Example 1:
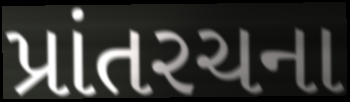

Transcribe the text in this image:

પ્રાંતરચના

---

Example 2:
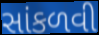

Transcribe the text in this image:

સાંકળવી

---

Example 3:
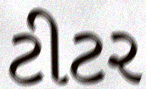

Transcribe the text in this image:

ટીટર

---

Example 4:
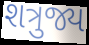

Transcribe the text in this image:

શત્રુજ્ય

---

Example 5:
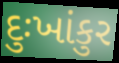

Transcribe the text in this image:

દુઃખાંકુર